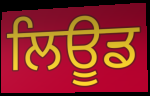
ਲਿਊਡ